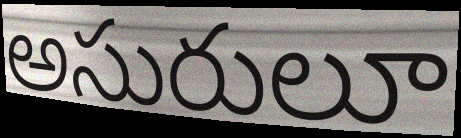
అసురులూ